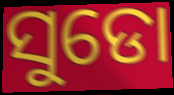
ସୁଡୋ